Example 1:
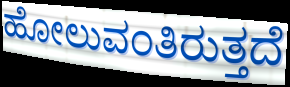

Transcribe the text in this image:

ಹೋಲುವಂತಿರುತ್ತದೆ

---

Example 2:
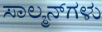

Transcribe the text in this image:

ಸಾಲ್ಮನ್‌ಗಳು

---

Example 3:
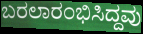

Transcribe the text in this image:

ಬರಲಾರಂಭಿಸಿದ್ದವು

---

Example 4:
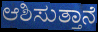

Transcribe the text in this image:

ಆಶಿಸುತ್ತಾನೆ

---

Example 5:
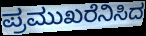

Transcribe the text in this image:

ಪ್ರಮುಖರೆನಿಸಿದ